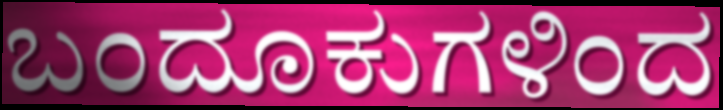
ಬಂದೂಕುಗಳಿಂದ